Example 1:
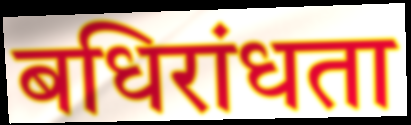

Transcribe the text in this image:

बधिरांधता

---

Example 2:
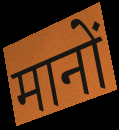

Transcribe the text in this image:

मानों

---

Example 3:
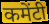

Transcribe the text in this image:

कमेंटी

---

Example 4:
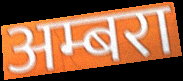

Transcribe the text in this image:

अम्बरा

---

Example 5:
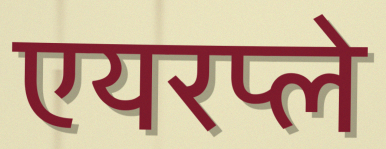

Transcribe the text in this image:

एयरप्ले